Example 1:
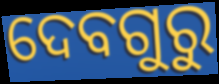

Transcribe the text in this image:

ଦେବଗୁରୁ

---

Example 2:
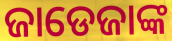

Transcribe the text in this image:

ଜାଡେଜାଙ୍କ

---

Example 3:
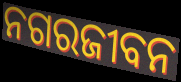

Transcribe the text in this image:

ନଗରଜୀବନ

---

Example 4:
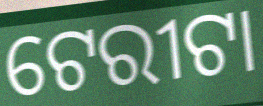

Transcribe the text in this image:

ଟେରୀଟା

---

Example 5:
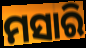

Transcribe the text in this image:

ମସାରି